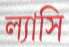
ল্যাসি